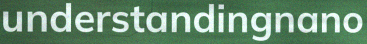
understandingnano